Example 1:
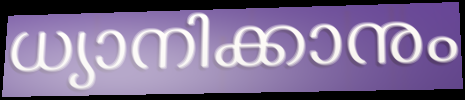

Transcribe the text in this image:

ധ്യാനിക്കാനും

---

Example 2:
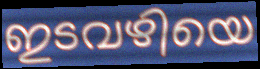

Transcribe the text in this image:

ഇടവഴിയെ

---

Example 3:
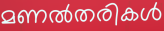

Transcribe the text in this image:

മണൽതരികൾ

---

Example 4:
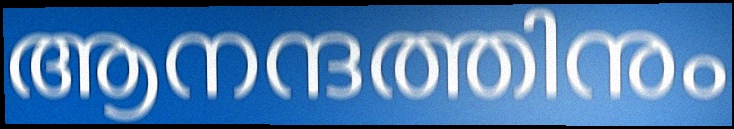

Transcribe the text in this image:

ആനന്ദത്തിനും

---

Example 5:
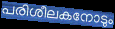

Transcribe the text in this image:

പരിശീലകനോടും